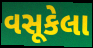
વસૂકેલા